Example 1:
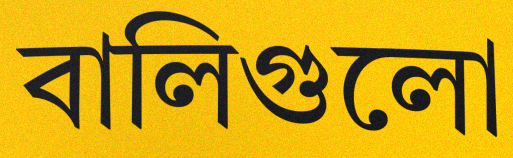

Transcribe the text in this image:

বালিগুলো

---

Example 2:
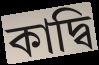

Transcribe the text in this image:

কাদ্বি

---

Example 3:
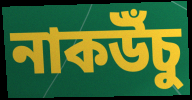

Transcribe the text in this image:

নাকউঁচু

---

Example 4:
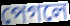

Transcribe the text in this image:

পেগলে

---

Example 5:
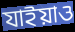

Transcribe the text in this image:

যাইয়াও